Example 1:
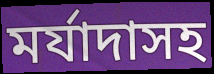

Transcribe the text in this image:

মর্যাদাসহ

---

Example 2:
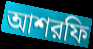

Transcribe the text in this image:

আশরফি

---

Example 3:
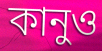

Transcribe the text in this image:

কানুও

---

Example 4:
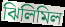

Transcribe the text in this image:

ঝিলিমিল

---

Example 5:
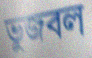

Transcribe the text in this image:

ভুজবল